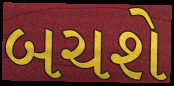
બચશે